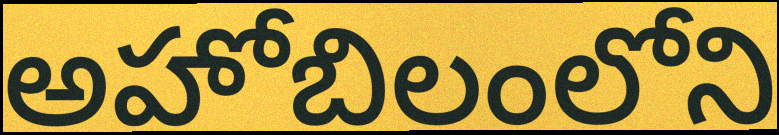
అహోబిలంలోని